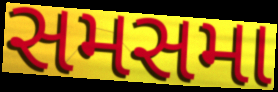
સમસમા